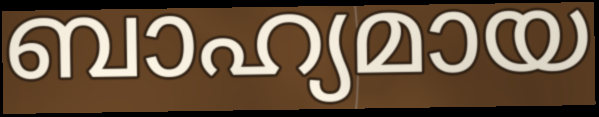
ബാഹ്യമായ